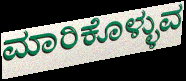
ಮಾರಿಕೊಳ್ಳುವ